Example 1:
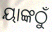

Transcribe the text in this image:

ୟାଙ୍କଠୁଁ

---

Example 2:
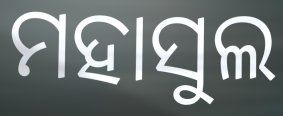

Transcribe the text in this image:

ମହାସୁଲ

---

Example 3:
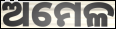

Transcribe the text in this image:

ଅମେଳ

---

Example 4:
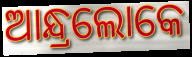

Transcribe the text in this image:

ଆନ୍ଧ୍ରଲୋକେ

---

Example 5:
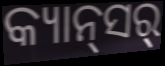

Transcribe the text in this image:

କ୍ୟାନ୍‍ସର୍